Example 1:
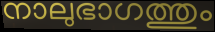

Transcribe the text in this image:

നാലുഭാഗത്തും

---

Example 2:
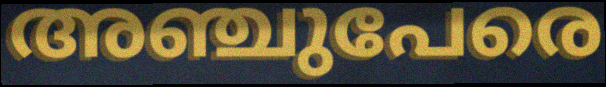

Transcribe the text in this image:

അഞ്ചുപേരെ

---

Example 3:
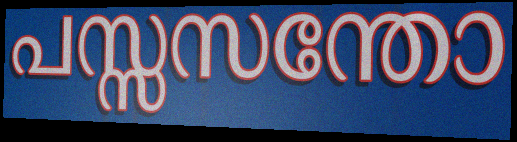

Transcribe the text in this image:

പസ്സസന്തോ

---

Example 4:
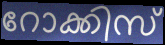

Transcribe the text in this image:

റോക്കിസ്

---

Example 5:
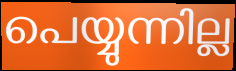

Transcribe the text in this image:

പെയ്യുന്നില്ല